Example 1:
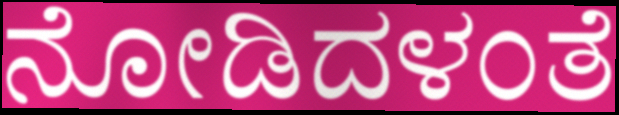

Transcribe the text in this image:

ನೋಡಿದಳಂತೆ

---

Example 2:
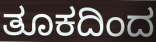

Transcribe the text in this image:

ತೂಕದಿಂದ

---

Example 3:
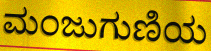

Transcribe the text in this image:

ಮಂಜುಗುಣಿಯ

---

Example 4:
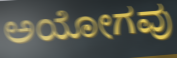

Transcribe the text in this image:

ಅಯೋಗವು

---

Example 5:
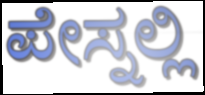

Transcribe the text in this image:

ಪೇಸ್ನಲ್ಲಿ